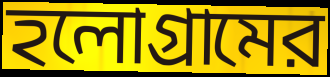
হলোগ্রামের